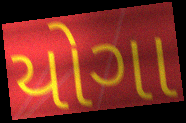
યોગા